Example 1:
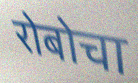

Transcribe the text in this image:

रोबोचा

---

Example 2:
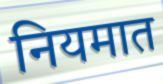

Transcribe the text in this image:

नियमात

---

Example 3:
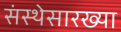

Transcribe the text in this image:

संस्थेसारख्या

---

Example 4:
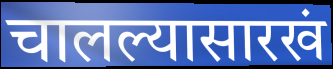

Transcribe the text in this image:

चालल्यासारखं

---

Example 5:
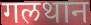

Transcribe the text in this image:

गलथान